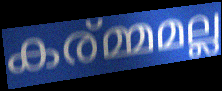
കര്മ്മമല്ല